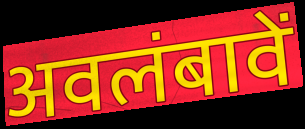
अवलंबावें